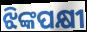
ଝିଙ୍କପକ୍ଷୀ